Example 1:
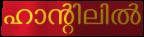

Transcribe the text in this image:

ഹാന്റിലിൽ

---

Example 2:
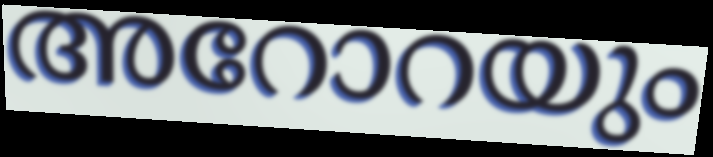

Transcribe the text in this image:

അറോറയും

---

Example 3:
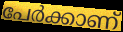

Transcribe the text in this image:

പേർക്കാണ്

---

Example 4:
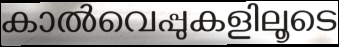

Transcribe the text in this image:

കാൽവെപ്പുകളിലൂടെ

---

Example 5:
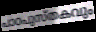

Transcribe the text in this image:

പാഠപുസ്തകവും